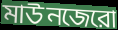
মাউনজেরো